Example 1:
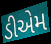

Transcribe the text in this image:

ડીએમ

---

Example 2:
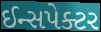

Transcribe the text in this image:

ઈન્સપેક્ટર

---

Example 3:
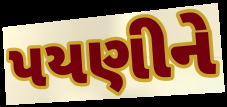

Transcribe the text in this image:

પયણીને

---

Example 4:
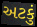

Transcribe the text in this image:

અટકું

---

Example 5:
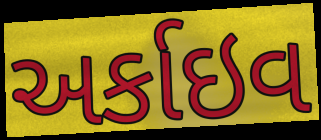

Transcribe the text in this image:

અર્કાઇવ